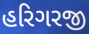
હરિગરજી